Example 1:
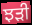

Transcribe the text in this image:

ਝੜੀ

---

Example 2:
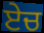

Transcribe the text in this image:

ਏਚ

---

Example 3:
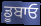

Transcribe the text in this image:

ਡੂਬਾਓ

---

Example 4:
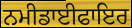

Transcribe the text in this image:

ਨਮੀਡਾਈਫਾਇਰ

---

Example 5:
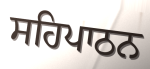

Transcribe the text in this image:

ਸਹਿਪਾਠਨ